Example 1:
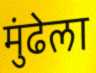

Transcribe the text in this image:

मुंढेला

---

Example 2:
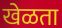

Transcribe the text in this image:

खेळता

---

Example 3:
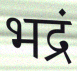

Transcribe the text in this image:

भद्रं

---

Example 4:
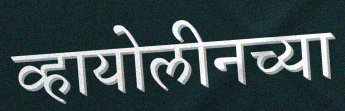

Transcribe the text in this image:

व्हायोलीनच्या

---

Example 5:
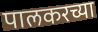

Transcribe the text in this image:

पालकरच्या